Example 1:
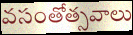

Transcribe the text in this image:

వసంతోత్సవాలు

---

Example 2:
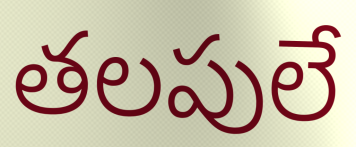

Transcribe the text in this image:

తలపులే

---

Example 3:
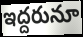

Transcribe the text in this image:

ఇద్దరునూ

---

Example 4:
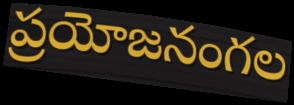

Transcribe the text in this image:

ప్రయోజనంగల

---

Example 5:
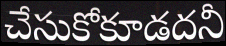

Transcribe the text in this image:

చేసుకోకూడదనీ